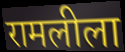
रामलीला